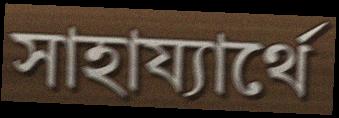
সাহায্যার্থে